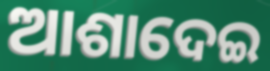
ଆଶାଦେଇ